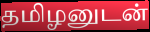
தமிழனுடன்